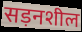
सड़नशील